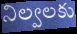
నిల్వలకు